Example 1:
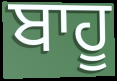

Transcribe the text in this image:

ਬਾਹੂ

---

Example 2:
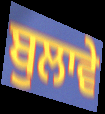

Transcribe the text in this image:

ਬੁਲਾਵੇ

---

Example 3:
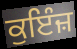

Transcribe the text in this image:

ਕੁਇੰਜ਼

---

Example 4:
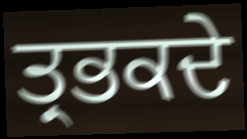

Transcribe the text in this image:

ਤ੍ਰਭਕਦੇ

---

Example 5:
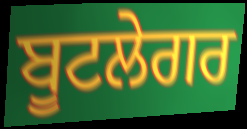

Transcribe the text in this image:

ਬੂਟਲੇਗਰ